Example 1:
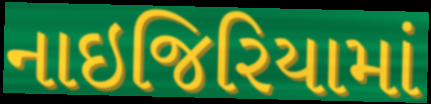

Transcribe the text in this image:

નાઇજિરિયામાં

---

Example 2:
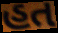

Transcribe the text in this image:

હત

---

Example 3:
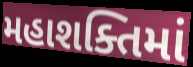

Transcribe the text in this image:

મહાશક્તિમાં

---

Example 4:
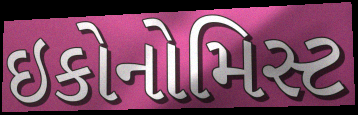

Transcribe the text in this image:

ઇકોનોમિસ્ટ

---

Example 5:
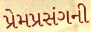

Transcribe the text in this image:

પ્રેમપ્રસંગની